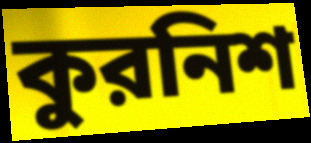
কুরনিশ